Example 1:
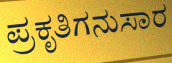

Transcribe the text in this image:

ಪ್ರಕೃತಿಗನುಸಾರ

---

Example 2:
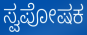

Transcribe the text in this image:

ಸ್ವಪೋಷಕ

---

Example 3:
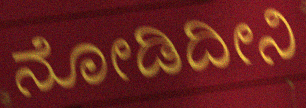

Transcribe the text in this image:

ನೋಡಿದೀನಿ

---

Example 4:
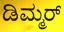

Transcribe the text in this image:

ಡಿಮ್ಮರ್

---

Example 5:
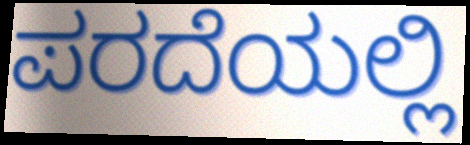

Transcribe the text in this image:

ಪರದೆಯಲ್ಲಿ